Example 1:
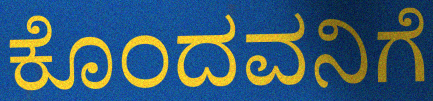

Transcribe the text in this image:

ಕೊಂದವನಿಗೆ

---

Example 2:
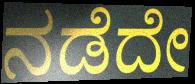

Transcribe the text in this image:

ನಡೆದೇ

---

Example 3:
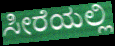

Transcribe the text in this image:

ಸೀರೆಯಲ್ಲಿ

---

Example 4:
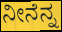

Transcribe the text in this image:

ನೀನೆನ್ನ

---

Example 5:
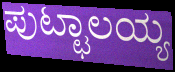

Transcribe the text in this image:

ಪುಟ್ಟಾಲಯ್ಯ